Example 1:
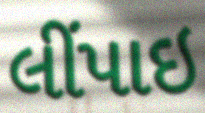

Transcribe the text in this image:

લીંપાઇ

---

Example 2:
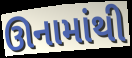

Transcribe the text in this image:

ઊનામાંથી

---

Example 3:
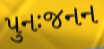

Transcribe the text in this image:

પુનઃજનન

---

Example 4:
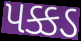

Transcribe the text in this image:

પક્કડ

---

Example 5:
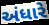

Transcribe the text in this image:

અંધારે